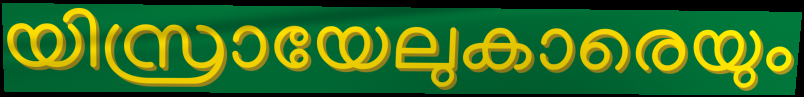
യിസ്രായേലുകാരെയും